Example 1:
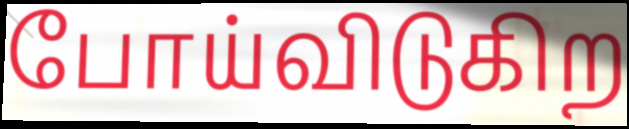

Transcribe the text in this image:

போய்விடுகிற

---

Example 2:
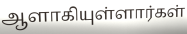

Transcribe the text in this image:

ஆளாகியுள்ளார்கள்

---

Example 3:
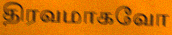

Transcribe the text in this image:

திரவமாகவோ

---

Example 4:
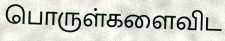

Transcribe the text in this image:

பொருள்களைவிட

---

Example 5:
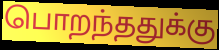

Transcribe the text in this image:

பொறந்ததுக்கு